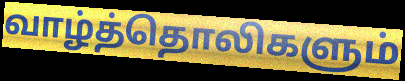
வாழ்த்தொலிகளும்